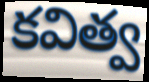
కవిత్వ